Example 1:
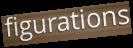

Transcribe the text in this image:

figurations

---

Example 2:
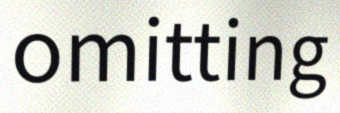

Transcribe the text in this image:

omitting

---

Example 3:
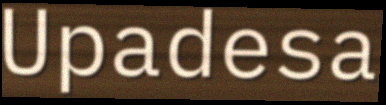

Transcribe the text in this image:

Upadesa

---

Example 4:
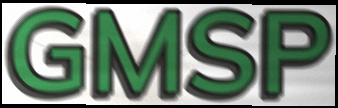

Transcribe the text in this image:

GMSP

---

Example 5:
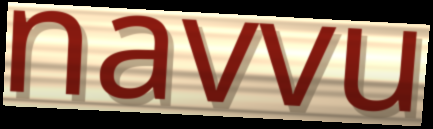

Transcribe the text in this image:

navvu